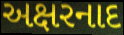
અક્ષરનાદ